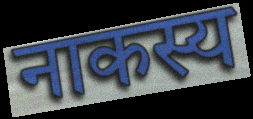
नाकस्य